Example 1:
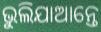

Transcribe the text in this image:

ଭୁଲିଯାଆନ୍ତେ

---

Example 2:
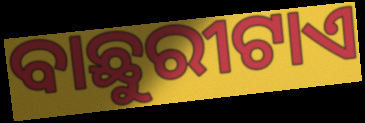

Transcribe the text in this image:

ବାଛୁରୀଟାଏ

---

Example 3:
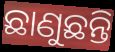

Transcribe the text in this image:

ଛାଣୁଛନ୍ତି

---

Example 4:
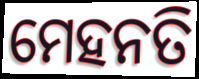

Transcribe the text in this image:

ମେହନତି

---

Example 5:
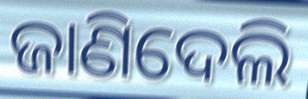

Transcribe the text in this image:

ଜାଣିଦେଲି